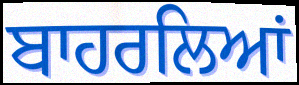
ਬਾਹਰਲਿਆਂ